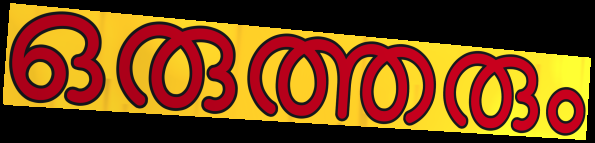
ഒരുത്തരും